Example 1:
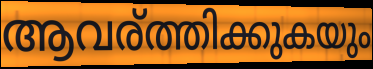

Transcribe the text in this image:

ആവര്ത്തിക്കുകയും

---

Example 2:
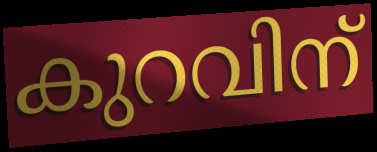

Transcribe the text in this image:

കുറവിന്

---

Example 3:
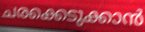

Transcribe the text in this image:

ചരക്കെടുക്കാൻ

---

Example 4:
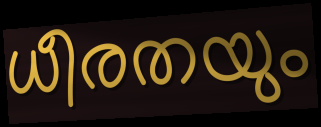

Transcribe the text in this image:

ധീരതയും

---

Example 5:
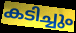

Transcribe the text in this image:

കടിച്ചും